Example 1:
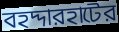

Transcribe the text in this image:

বহদ্দারহাটের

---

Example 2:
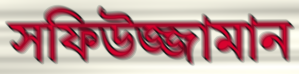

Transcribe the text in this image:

সফিউজ্জামান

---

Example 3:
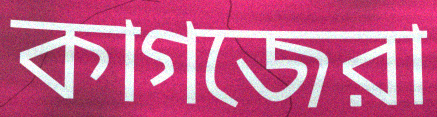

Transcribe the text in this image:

কাগজেরা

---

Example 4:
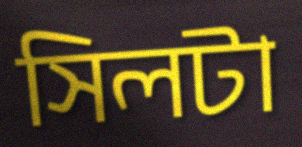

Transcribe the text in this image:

সিলটা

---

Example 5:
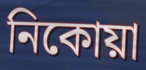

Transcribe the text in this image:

নিকোয়া